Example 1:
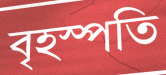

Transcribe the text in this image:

বৃহস্পতি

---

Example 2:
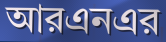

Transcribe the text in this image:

আরএনএর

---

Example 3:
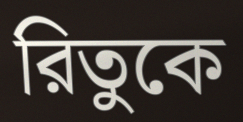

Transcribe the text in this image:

রিতুকে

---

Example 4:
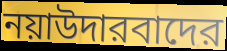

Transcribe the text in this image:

নয়াউদারবাদের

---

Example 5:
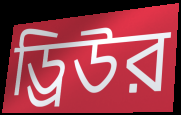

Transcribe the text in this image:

ড্রিউর